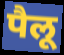
पैलू